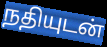
நதியுடன்